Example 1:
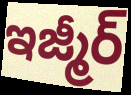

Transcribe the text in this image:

ఇజ్మీర్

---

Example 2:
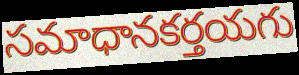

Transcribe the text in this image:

సమాధానకర్తయగు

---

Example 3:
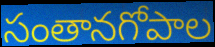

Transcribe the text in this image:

సంతానగోపాల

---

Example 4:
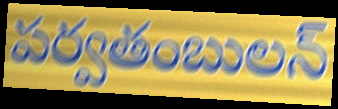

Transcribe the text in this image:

పర్వతంబులన్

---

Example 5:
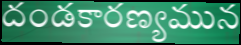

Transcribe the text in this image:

దండకారణ్యమున